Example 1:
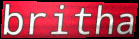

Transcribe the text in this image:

britha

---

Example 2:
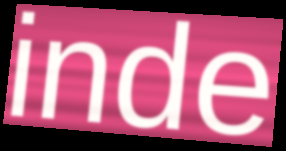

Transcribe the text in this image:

inde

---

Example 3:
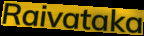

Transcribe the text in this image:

Raivataka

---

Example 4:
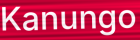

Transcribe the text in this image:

Kanungo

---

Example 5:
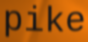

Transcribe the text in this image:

pike